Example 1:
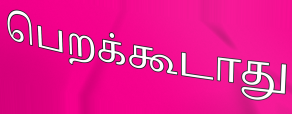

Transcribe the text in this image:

பெறக்கூடாது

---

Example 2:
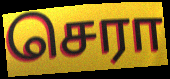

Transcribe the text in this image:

செரா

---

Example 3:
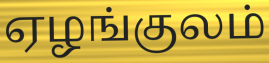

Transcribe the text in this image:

ஏழங்குலம்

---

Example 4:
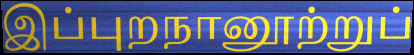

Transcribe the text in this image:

இப்புறநானூற்றுப்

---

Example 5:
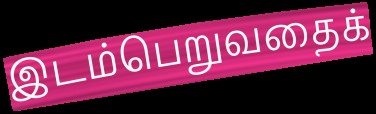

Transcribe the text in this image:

இடம்பெறுவதைக்